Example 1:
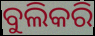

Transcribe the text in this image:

ବୁଲିକରି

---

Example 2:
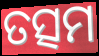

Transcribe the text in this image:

ତତ୍ସମ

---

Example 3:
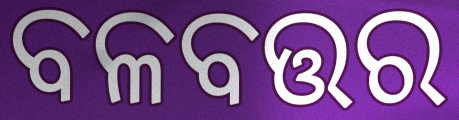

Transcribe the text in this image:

ବଳବତ୍ତର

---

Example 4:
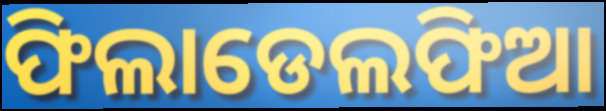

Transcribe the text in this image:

ଫିଲାଡେଲଫିଆ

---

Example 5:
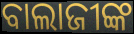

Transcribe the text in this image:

ବାଲାଜୀଙ୍କ